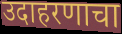
उदाहरणाचा